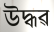
উদ্ধৱ